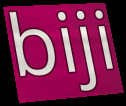
biji